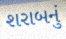
શરાબનું